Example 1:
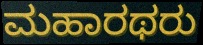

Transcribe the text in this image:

ಮಹಾರಥರು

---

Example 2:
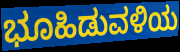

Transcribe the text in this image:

ಭೂಹಿಡುವಳಿಯ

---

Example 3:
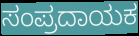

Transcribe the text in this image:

ಸಂಪ್ರದಾಯಕ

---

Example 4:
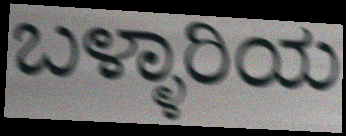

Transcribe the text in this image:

ಬಳ್ಳಾರಿಯ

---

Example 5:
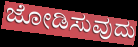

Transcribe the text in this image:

ಜೋಡಿಸುವುದು